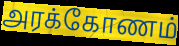
அரக்கோணம்